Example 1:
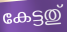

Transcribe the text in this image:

കേട്ടതു്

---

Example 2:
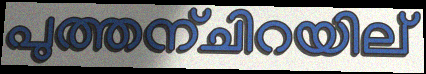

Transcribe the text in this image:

പുത്തന്ചിറയില്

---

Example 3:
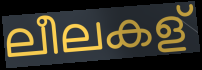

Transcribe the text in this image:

ലീലകള്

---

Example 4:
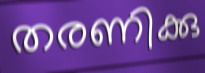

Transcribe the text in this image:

തരണിക്കു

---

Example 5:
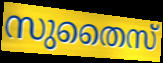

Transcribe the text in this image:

സുതൈസ്